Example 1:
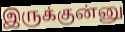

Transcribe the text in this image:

இருக்குன்னு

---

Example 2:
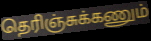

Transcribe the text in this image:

தெரிஞ்சுக்கணும்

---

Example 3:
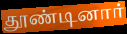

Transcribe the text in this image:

தூண்டினார்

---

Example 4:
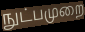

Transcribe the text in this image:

நுட்பமுறை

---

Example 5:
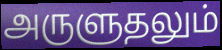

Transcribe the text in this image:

அருளுதலும்